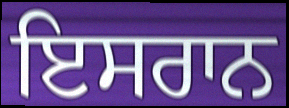
ਇਸਰਾਨ